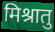
मिश्रातु